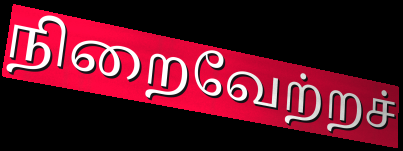
நிறைவேற்றச்